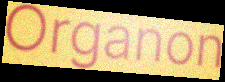
Organon